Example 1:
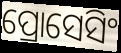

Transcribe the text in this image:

ପ୍ରୋସେସିଂ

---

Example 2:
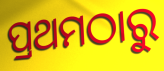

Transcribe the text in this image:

ପ୍ରଥମଠାରୁ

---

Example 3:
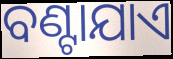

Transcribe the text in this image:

ବଣ୍ଟାଯାଏ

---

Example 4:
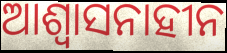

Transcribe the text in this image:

ଆଶ୍ୱାସନାହୀନ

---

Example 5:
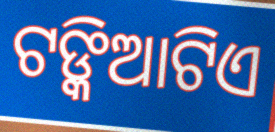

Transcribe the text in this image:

ଟଙ୍କିଆଟିଏ